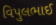
વિપુલભાઈ